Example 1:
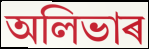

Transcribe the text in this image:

অলিভাৰ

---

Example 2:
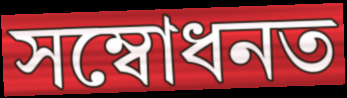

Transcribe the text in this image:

সম্বোধনত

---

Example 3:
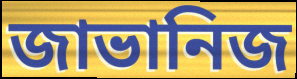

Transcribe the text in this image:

জাভানিজ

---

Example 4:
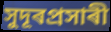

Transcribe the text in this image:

সুদূৰপ্ৰসাৰী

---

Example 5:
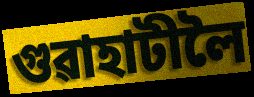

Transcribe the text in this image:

গুৱাহাটীলৈ